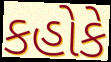
કહોકે